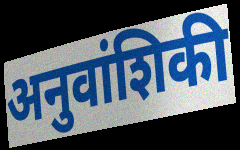
अनुवांशिकी